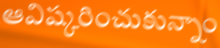
ఆవిష్కరించుకున్నాం